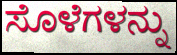
ಸೊಳೆಗಳನ್ನು